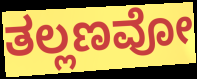
ತಲ್ಲಣವೋ